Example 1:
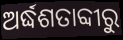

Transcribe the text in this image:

ଅର୍ଦ୍ଧଶତାବ୍ଦୀରୁ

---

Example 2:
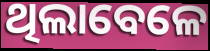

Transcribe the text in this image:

ଥିଲାବେଳେ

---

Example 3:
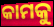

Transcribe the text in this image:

କାମକୁ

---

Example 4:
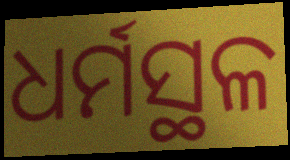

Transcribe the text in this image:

ଧର୍ମସ୍ଥଳ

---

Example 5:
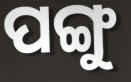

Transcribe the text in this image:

ପଙ୍ଗୁ